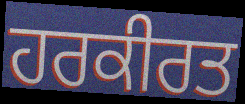
ਹਰਕੀਰਤ